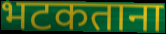
भटकताना